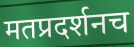
मतप्रदर्शनच